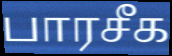
பாரசீக